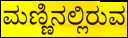
ಮಣ್ಣಿನಲ್ಲಿರುವ